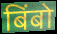
बिंबो